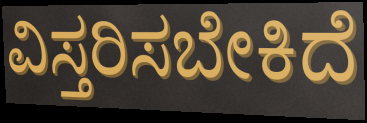
ವಿಸ್ತರಿಸಬೇಕಿದೆ